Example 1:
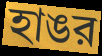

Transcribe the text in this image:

হাঙর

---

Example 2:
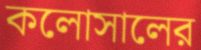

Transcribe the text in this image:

কলোসালের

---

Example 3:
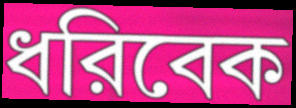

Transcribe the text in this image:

ধরিবেক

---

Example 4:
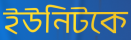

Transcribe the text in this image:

ইউনিটকে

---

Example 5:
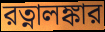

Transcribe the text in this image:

রত্নালঙ্কার